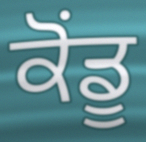
ਕੋਂਡੂ